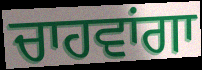
ਚਾਹਵਾਂਗਾ